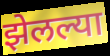
झेलल्या